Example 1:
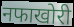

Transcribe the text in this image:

नफाखोरी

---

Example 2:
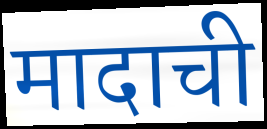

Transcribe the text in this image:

मादाची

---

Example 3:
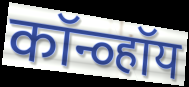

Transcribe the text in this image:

कॉन्व्हॉय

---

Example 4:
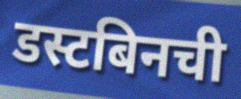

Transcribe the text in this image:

डस्टबिनची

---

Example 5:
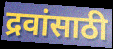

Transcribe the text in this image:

द्रवांसाठी